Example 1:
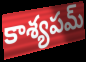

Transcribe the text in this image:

కాశ్యపమ్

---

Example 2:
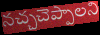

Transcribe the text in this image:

నచ్చచెప్పాలని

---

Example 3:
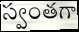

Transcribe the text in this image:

స్వంతగా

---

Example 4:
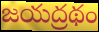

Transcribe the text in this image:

జయద్రథం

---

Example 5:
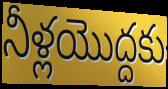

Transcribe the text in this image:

నీళ్లయొద్దకు